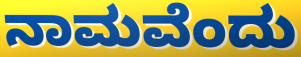
ನಾಮವೆಂದು